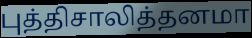
புத்திசாலித்தனமா